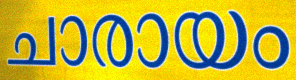
ചാരായം